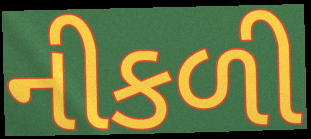
નીકળી